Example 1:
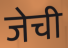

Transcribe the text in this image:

जेची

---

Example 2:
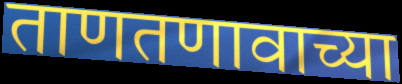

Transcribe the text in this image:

ताणतणावाच्या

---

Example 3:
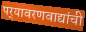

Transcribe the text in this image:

पर्यावरणवाद्यांची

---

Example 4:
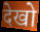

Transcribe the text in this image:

देखो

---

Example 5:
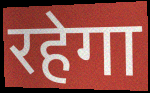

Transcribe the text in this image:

रहेगा